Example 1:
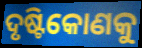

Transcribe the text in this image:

ଦୃଷ୍ଟିକୋଣକୁ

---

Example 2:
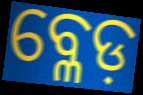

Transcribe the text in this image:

ବ୍ଳେଡ଼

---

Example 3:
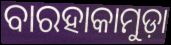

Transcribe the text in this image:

ବାରହାକାମୁଡ଼ା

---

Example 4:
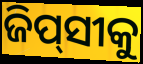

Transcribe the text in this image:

ଜିପ୍‌ସୀକୁ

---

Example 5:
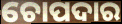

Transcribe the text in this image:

ଚୋପଦାର